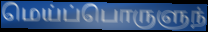
மெய்ப்பொருளுந்